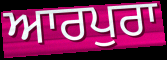
ਆਰਪੁਰਾ